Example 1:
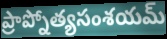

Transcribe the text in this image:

ప్రాప్నోత్యసంశయమ్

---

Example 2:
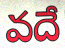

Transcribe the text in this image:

వదే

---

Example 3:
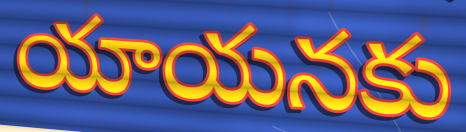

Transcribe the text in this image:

యాయనకు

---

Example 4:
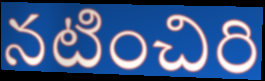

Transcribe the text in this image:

నటించిరి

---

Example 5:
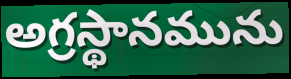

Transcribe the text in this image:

అగ్రస్థానమును